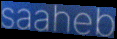
saaheb